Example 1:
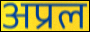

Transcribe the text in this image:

अप्रल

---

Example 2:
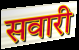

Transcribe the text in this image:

सवारी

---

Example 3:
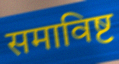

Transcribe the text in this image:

समाविष्ट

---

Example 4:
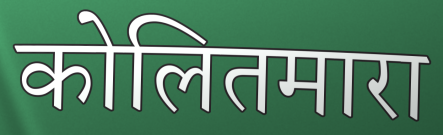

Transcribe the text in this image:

कोलितमारा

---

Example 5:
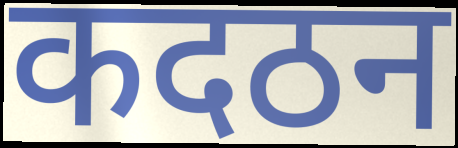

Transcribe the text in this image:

कदठन